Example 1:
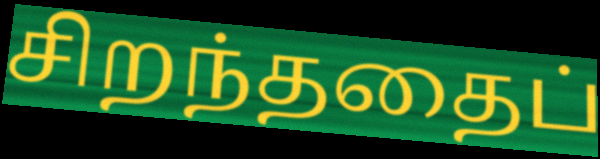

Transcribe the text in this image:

சிறந்ததைப்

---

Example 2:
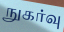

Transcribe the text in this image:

நுகர்வு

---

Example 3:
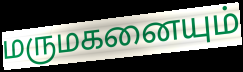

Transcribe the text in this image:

மருமகனையும்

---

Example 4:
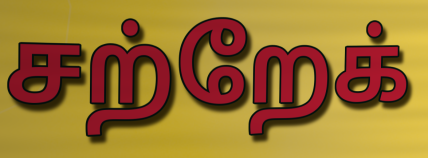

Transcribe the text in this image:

சற்றேக்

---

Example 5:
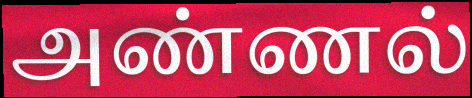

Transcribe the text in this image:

அண்ணல்